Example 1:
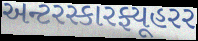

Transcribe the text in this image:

અન્ટરસ્કારફ્યૂહરર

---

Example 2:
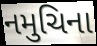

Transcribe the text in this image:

નમુચિના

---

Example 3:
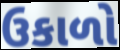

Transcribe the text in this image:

ઉકાળો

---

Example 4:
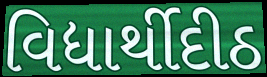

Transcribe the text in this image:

વિદ્યાર્થીદીઠ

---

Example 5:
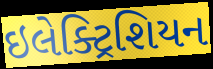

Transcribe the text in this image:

ઇલેક્ટ્રિશિયન